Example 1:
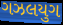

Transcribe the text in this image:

ગઝલયુગ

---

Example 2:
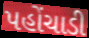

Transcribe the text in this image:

પહોંચાડી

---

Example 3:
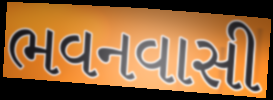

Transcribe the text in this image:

ભવનવાસી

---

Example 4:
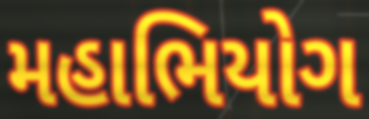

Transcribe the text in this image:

મહાભિયોગ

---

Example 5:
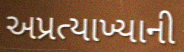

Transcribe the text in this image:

અપ્રત્યાખ્યાની